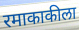
रमाकाकीला